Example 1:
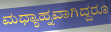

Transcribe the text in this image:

ಮಧ್ಯಾಹ್ನವಾಗಿದ್ದರೂ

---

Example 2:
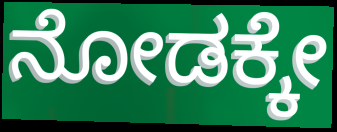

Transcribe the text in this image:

ನೋಡಕ್ಕೇ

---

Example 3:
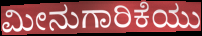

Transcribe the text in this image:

ಮೀನುಗಾರಿಕೆಯು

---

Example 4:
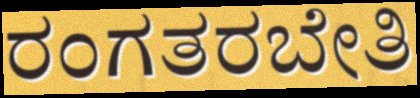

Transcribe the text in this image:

ರಂಗತರಬೇತಿ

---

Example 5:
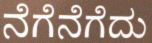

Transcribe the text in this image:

ನೆಗೆನೆಗೆದು